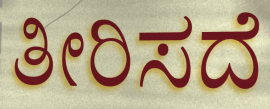
ತೀರಿಸದೆ